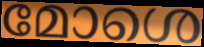
മോശെ